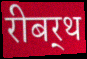
रीबर्थ